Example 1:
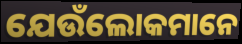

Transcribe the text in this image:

ଯେଉଁଲୋକମାନେ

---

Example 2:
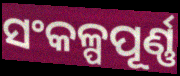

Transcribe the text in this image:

ସଂକଳ୍ପପୂର୍ଣ୍ଣ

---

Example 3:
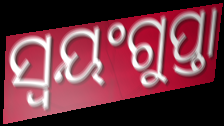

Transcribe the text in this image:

ସ୍ୱୟଂଗୁପ୍ତା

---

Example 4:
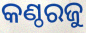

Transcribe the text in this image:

କଣ୍ଠରଜୁ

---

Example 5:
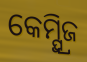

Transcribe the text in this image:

କେମ୍ପ୍ୱ୍ରିଜ